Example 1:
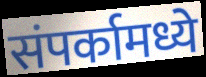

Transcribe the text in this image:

संपर्कामध्ये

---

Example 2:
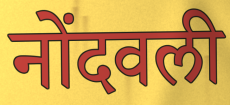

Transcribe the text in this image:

नोंदवली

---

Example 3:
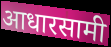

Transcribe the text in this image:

आधारसामी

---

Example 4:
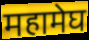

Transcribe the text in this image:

महामेघ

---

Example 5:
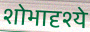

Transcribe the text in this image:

शोभादृश्ये